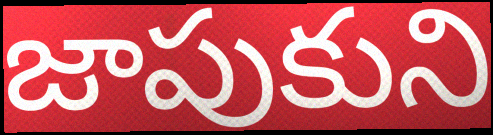
జాపుకుని